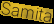
Samita